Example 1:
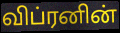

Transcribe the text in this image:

விப்ரனின்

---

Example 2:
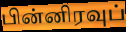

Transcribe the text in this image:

பின்னிரவுப்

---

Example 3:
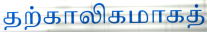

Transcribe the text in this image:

தற்காலிகமாகத்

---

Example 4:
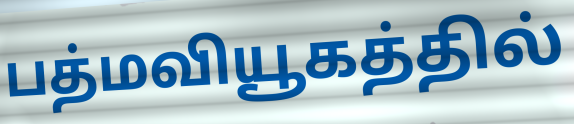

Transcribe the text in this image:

பத்மவியூகத்தில்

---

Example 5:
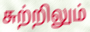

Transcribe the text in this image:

சுற்றிலும்